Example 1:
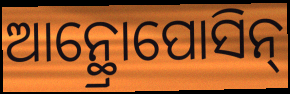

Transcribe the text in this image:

ଆନ୍ଥ୍ରୋପୋସିନ୍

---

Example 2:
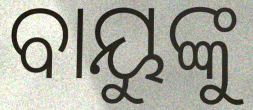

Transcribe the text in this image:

ବାୟୁଙ୍କୁ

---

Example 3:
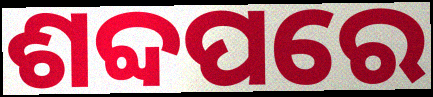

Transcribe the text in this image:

ଶବ୍ଦପରେ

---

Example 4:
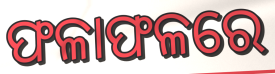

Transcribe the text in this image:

ଫଳାଫଳରେ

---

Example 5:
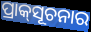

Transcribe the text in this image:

ପ୍ରାକ୍‌ସୂଚନାର